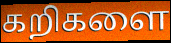
கறிகளை